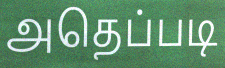
அதெப்படி